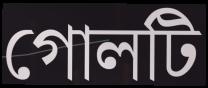
গোলটি